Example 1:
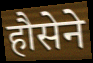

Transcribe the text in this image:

हौसेने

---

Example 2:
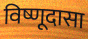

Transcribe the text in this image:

विष्णूदासा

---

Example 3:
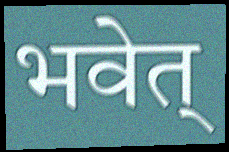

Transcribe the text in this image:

भवेत्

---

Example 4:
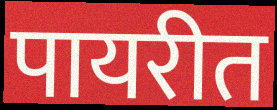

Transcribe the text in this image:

पायरीत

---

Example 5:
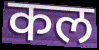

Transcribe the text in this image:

कल